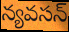
న్యవసన్